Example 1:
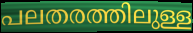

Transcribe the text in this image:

പലതരത്തിലുള്ള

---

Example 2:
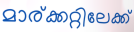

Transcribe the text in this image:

മാര്ക്കറ്റിലേക്ക്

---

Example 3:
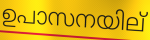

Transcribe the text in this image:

ഉപാസനയില്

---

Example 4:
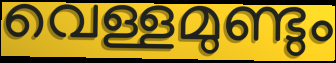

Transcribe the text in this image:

വെള്ളമുണ്ടും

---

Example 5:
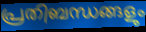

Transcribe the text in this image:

പ്രതിബന്ധങ്ങളും